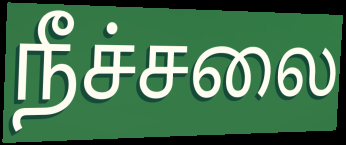
நீச்சலை